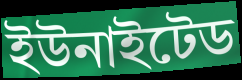
ইউনাইটেড